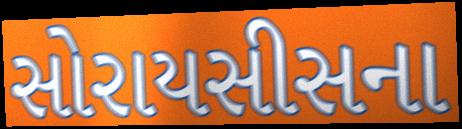
સોરાયસીસના